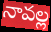
నావల్ల